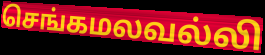
செங்கமலவல்லி